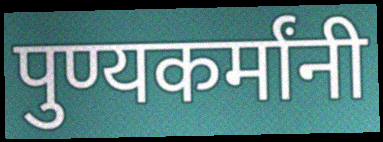
पुण्यकर्मांनी